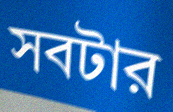
সবটার